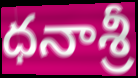
ధనాశ్రీ